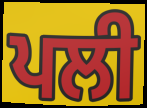
ਪਲੀ